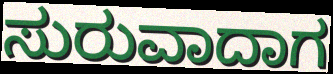
ಸುರುವಾದಾಗ